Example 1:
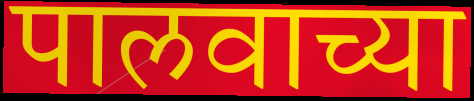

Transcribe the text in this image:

पालवाच्या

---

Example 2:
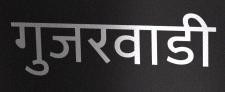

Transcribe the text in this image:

गुजरवाडी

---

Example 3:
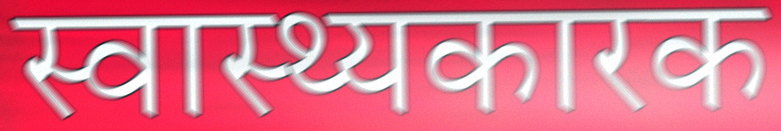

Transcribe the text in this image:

स्वास्थ्यकारक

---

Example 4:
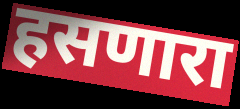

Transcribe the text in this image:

हसणारा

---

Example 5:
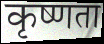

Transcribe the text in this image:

कृष्णता